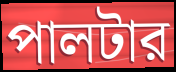
পালটার